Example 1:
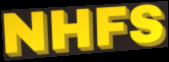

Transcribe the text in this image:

NHFS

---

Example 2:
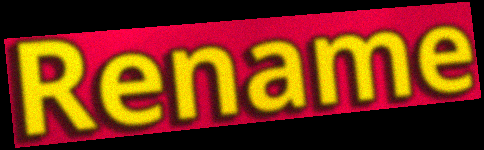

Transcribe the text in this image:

Rename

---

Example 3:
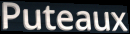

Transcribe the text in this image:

Puteaux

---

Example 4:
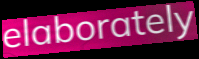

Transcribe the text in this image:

elaborately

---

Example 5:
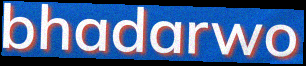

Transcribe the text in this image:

bhadarwo